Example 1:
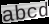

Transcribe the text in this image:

abcd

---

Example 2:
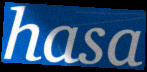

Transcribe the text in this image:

hasa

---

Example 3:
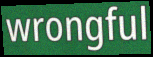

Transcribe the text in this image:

wrongful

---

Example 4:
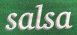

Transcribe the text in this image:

salsa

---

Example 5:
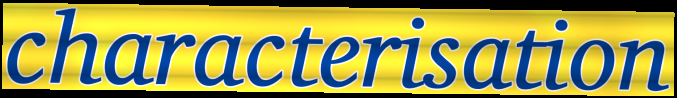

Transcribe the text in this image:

characterisation